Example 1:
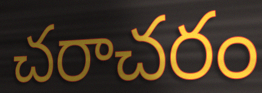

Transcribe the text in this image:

చరాచరం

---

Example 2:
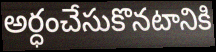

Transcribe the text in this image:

అర్ధంచేసుకొనటానికి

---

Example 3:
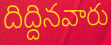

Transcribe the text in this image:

దిద్దినవారు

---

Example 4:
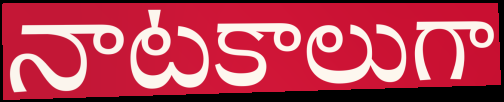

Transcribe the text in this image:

నాటకాలుగా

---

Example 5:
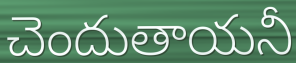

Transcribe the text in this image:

చెందుతాయనీ